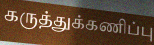
கருத்துக்கணிப்பு